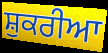
ਸ਼ੁਕਰੀਆ